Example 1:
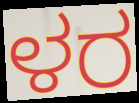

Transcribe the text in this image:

ಳರ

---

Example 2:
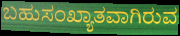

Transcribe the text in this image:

ಬಹುಸಂಖ್ಯಾತವಾಗಿರುವ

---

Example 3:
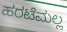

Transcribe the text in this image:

ಹರಟೆಮಲ್ಲ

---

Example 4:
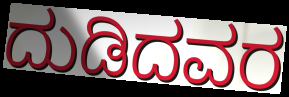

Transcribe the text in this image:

ದುಡಿದವರ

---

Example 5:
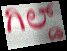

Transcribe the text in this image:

ಗಿಲ್ಡ್